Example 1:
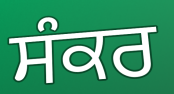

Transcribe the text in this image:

ਸੰਕਰ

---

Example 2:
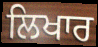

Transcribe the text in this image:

ਲਿਖਾਰ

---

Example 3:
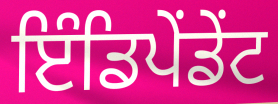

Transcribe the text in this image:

ਇੰਡਿਪੇਂਡੇਂਟ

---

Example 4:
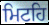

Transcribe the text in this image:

ਮਿਟਹਿ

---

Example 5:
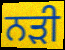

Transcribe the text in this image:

ਨੜੀ